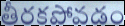
తీరకపోవడం